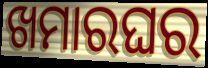
ଖମାରଘର